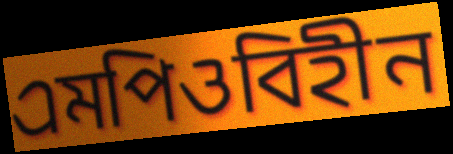
এমপিওবিহীন